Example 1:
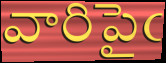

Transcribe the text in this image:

వారిపైఁ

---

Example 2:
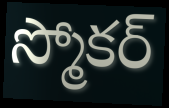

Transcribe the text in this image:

స్మోకర్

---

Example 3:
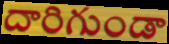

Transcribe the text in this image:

దారిగుండా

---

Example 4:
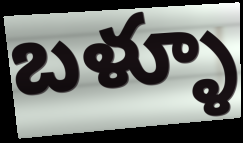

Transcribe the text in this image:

బళ్ళూ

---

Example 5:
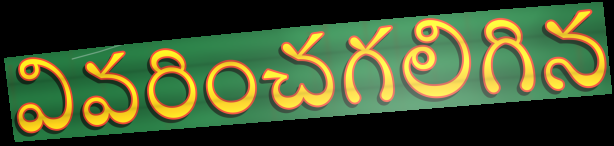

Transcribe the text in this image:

వివరించగలిగిన